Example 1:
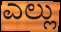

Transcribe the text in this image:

ಎಲ್ಲು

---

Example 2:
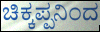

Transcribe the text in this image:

ಚಿಕ್ಕಪ್ಪನಿಂದ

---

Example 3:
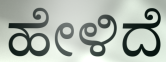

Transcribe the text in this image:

ಹೇಳಿದೆ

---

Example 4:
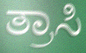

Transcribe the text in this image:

ತ್ರಾಸಿ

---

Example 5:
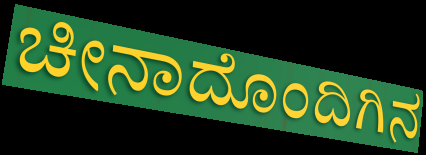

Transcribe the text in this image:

ಚೀನಾದೊಂದಿಗಿನ